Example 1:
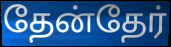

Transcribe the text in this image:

தேன்தேர்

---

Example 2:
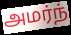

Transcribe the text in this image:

அமர்ந்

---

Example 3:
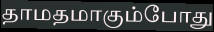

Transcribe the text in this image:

தாமதமாகும்போது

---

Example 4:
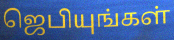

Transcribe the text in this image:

ஜெபியுங்கள்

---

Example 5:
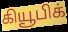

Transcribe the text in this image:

கியூபிக்